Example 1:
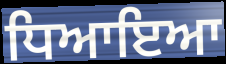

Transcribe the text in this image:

ਧਿਆਇਆ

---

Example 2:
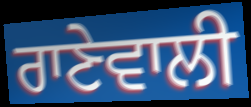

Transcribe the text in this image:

ਰਾਣੇਵਾਲੀ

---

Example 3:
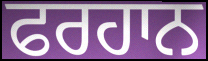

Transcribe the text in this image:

ਫਰਹਾਨ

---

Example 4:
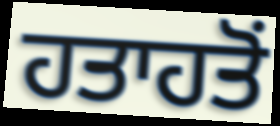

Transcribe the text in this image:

ਹਤਾਹਤੋਂ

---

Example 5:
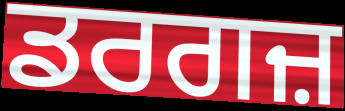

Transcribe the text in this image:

ਡਰਗਜ਼